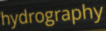
hydrography